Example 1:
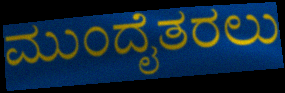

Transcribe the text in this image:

ಮುಂದೈತರಲು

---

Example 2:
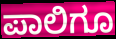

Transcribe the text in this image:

ಪಾಲಿಗೂ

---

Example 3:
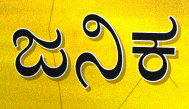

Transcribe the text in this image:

ಜನಿಕ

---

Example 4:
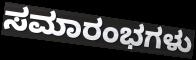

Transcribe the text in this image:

ಸಮಾರಂಭಗಳು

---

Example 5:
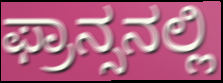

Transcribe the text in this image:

ಫ್ರಾನ್ಸನಲ್ಲಿ